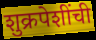
शुक्रपेशींची